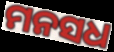
ମନସଧ